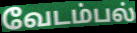
வேடம்பல்